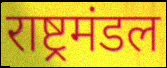
राष्ट्रमंडल